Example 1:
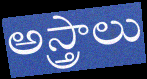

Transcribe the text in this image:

అస్త్రాలు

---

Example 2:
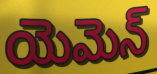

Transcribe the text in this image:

యెమెన్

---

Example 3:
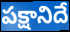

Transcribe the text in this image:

పక్షానిదే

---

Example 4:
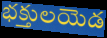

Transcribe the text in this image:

భక్తులయెడ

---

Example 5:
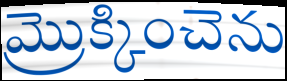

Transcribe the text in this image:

మ్రొక్కించెను